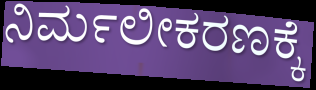
ನಿರ್ಮಲೀಕರಣಕ್ಕೆ